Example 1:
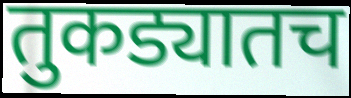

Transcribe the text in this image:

तुकड्यातच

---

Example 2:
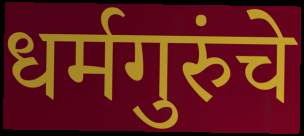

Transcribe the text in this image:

धर्मगुरुंचे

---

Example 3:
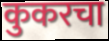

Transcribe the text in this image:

कुकरचा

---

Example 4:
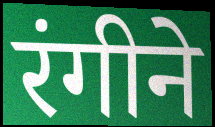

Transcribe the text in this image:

रंगीने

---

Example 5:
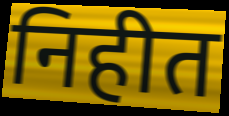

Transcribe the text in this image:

निहीत